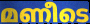
മണീടെ